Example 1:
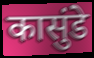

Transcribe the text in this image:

कासुंडे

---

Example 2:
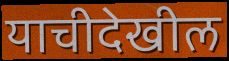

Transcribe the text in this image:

याचीदेखील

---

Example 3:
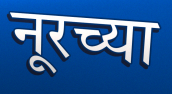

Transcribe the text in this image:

नूरच्या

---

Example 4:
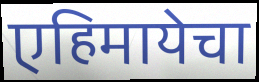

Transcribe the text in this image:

एहिमायेचा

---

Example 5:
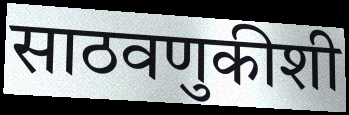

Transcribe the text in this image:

साठवणुकीशी